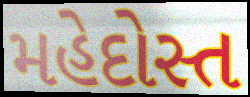
મહેદોસ્ત